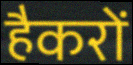
हैकरों